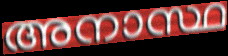
അനാസ്ഥ